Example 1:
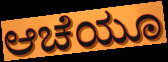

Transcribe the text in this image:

ಆಚೆಯೂ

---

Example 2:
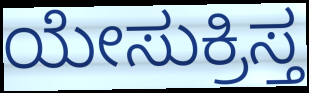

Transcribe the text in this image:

ಯೇಸುಕ್ರಿಸ್ತ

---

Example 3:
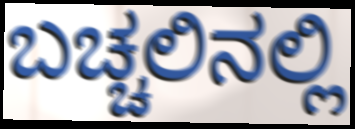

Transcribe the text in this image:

ಬಚ್ಚಲಿನಲ್ಲಿ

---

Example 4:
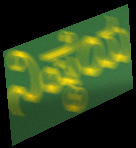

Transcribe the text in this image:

ನಿಷ್ಠೆಯ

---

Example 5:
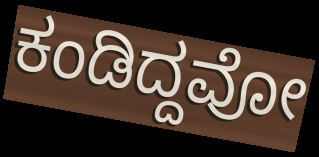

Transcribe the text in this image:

ಕಂಡಿದ್ದವೋ